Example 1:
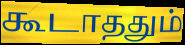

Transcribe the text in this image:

கூடாததும்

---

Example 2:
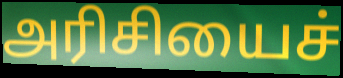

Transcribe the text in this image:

அரிசியைச்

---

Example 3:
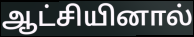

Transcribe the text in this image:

ஆட்சியினால்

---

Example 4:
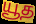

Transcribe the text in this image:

யூத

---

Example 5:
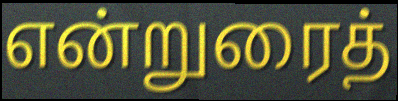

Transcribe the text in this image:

என்றுரைத்